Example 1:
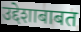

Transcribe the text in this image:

उद्देशाबाबत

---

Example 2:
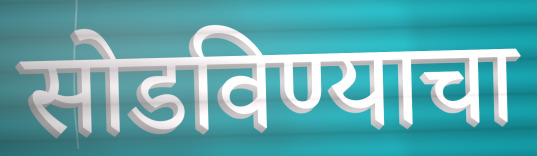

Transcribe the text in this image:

सोडविण्याचा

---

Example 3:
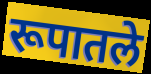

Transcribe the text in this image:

रूपातले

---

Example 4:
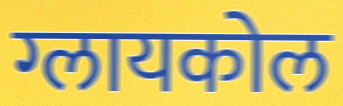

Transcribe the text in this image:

ग्लायकोल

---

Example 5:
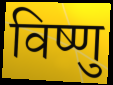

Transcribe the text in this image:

विष्णु